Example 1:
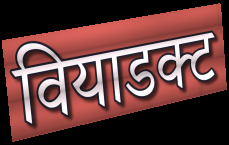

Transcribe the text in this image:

वियाडक्ट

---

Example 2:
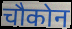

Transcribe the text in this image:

चौकोन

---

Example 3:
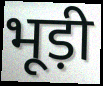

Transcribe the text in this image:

भूड़ी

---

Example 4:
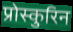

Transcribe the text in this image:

प्रोस्कुरिन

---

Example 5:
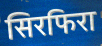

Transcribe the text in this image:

सिरफिरा